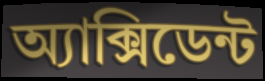
অ্যাক্সিডেন্ট